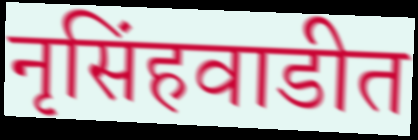
नृसिंहवाडीत